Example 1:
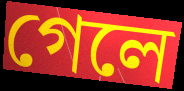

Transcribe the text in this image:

গেলে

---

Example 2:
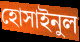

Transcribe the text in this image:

হোসাইনুল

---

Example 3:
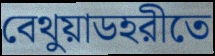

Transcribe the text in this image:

বেথুয়াডহরীতে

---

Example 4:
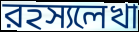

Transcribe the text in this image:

রহস্যলেখা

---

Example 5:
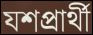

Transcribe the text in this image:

যশপ্রার্থী